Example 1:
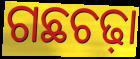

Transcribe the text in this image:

ଗଛଚଢ଼ା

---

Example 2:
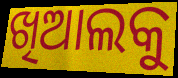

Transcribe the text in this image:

ଖିଆଲକୁ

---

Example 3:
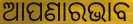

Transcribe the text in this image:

ଆପଣାରଭାବ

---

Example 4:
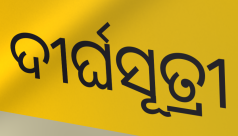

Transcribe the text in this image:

ଦୀର୍ଘସୂତ୍ରୀ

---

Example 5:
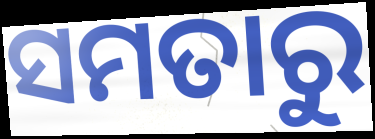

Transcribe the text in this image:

ସମତାରୁ